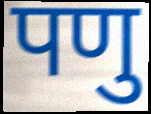
पणु